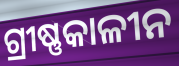
ଗ୍ରୀଷ୍ଣକାଳୀନ